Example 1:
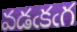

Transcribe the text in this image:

వడఁకఁగ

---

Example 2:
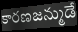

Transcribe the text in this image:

కారణజన్ముడే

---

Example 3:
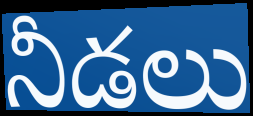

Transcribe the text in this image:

నీడలు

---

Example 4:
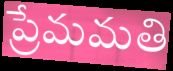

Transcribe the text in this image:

ప్రేమమతి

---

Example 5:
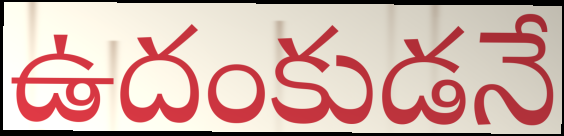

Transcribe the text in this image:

ఉదంకుడనే